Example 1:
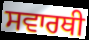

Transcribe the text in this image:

ਸਵਾਰਥੀ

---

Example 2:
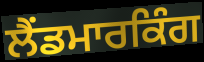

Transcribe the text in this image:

ਲੈਂਡਮਾਰਕਿੰਗ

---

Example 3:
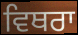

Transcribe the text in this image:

ਵਿਥਰਾ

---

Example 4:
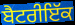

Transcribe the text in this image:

ਬੈਟਰੀਇੱਕ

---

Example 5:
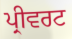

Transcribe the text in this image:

ਪ੍ਰੀਵਰਟ